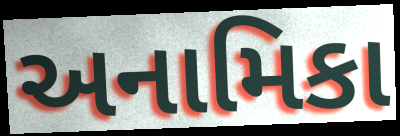
અનામિકા